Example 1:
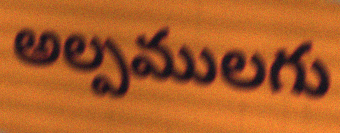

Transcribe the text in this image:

అల్పములగు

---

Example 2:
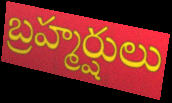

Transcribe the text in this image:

బ్రహ్మర్షులు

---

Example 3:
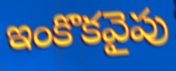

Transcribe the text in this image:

ఇంకొకవైపు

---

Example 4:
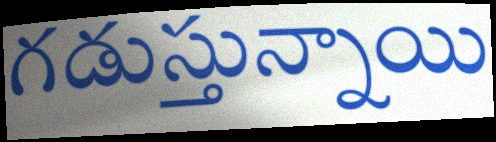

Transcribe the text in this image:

గడుస్తున్నాయి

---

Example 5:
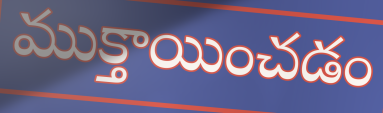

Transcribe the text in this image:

ముక్తాయించడం